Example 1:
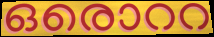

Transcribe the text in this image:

ഒരൊററ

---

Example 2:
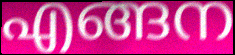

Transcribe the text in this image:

എങ്ങന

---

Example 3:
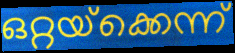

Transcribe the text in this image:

ഒറ്റയ്‌ക്കെന്ന്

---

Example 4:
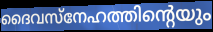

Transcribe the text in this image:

ദൈവസ്നേഹത്തിന്റെയും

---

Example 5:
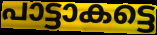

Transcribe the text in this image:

പാട്ടാകട്ടെ